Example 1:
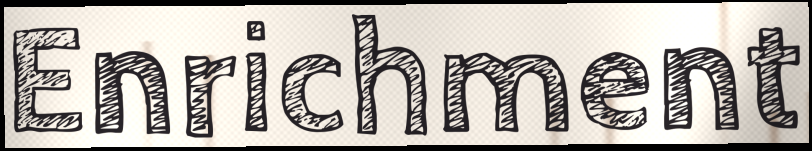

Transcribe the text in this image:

Enrichment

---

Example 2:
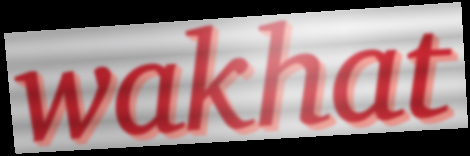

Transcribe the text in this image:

wakhat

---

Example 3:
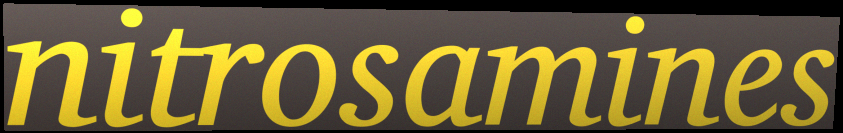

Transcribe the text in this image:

nitrosamines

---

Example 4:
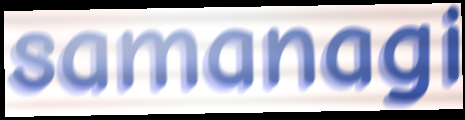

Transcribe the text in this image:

samanagi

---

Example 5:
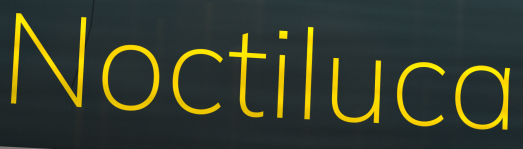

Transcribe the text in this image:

Noctiluca